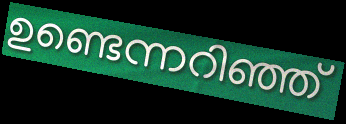
ഉണ്ടെന്നറിഞ്ഞ്